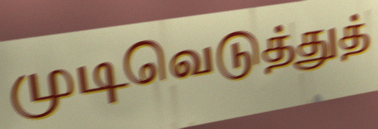
முடிவெடுத்துத்